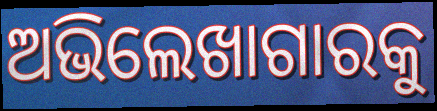
ଅଭିଲେଖାଗାରକୁ